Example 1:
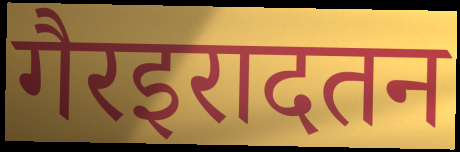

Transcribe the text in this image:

गैरइरादतन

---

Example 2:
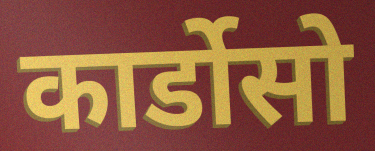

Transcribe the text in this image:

कार्डोसो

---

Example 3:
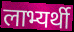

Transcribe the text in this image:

लाभ्यर्थी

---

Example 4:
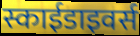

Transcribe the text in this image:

स्काईडाइवर्स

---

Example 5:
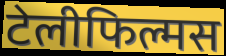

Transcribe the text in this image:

टेलीफिल्मस